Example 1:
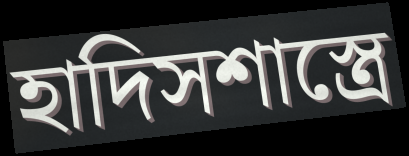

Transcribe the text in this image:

হাদিসশাস্ত্রে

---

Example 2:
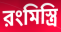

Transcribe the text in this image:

রংমিস্ত্রি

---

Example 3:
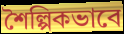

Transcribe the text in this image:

শৈল্পিকভাবে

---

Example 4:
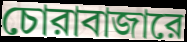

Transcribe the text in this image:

চোরাবাজারে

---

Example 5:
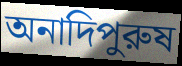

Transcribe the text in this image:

অনাদিপুরুষ